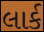
લાર્ક